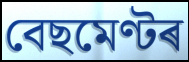
বেছমেণ্টৰ